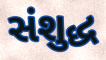
સંશુદ્ધ